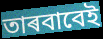
তাৰবাবেই